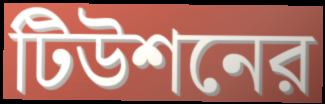
টিউশনের